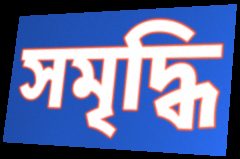
সমৃদ্ধি